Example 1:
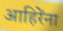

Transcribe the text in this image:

आहिरेंना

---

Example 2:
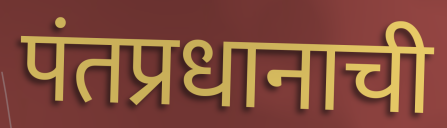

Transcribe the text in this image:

पंतप्रधानाची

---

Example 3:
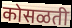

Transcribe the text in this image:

कोसळती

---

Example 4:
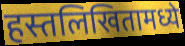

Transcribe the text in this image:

हस्तलिखितामध्ये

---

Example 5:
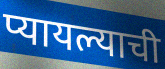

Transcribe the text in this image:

प्यायल्याची